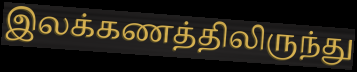
இலக்கணத்திலிருந்து